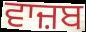
ਵਾਜ਼ਬ